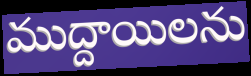
ముద్దాయిలను